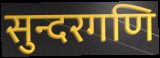
सुन्दरगणि